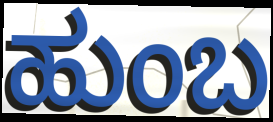
ಹುಂಬ